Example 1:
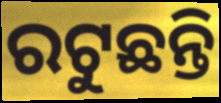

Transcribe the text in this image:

ରଟୁଛନ୍ତି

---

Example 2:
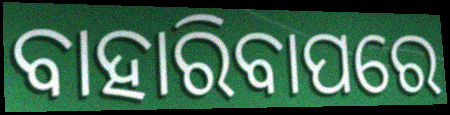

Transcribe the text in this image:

ବାହାରିବାପରେ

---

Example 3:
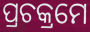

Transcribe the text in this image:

ପ୍ରଚକ୍ରମେ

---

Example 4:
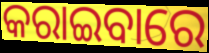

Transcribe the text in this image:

କରାଇବାରେ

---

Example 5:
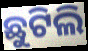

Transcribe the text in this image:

ଛୁଟିଲି